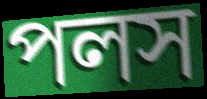
পলস